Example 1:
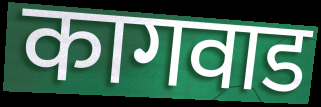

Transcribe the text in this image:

कागवाड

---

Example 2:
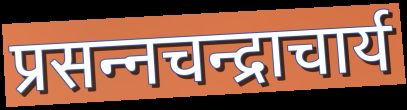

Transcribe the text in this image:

प्रसन्नचन्द्राचार्य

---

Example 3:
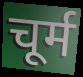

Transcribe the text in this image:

चूर्म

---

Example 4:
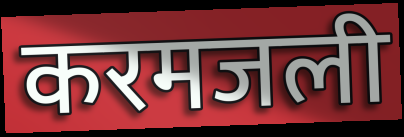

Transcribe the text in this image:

करमजली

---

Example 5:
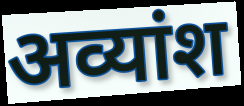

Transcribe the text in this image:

अव्यांश